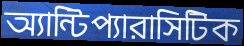
অ্যান্টিপ্যারাসিটিক